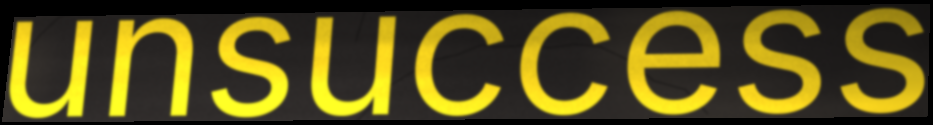
unsuccess